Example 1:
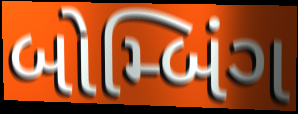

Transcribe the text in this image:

બોમ્બિંગ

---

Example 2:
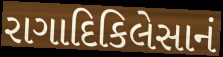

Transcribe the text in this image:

રાગાદિકિલેસાનં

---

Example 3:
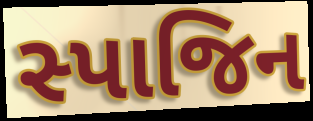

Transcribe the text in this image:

સ્પાજિન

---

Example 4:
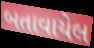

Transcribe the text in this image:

બતાવાયેલ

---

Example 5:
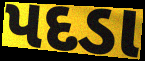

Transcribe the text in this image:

પદડા